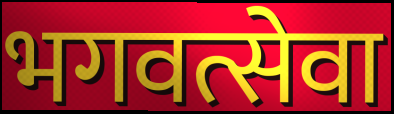
भगवत्सेवा